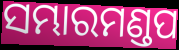
ସମ୍ଭାରମଣ୍ଡପ